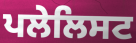
ਪਲੇਲਿਸਟ